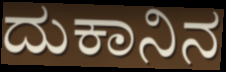
ದುಕಾನಿನ